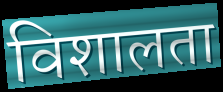
विशालता